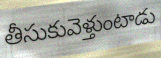
తీసుకువెళ్తుంటాడు